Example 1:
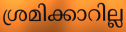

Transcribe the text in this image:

ശ്രമിക്കാറില്ല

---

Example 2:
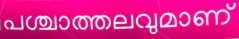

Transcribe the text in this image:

പശ്ചാത്തലവുമാണ്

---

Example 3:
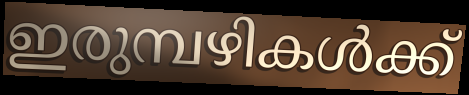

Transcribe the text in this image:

ഇരുമ്പഴികൾക്ക്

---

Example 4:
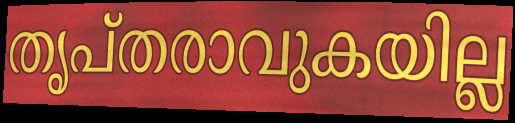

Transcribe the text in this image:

തൃപ്തരാവുകയില്ല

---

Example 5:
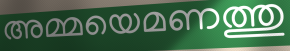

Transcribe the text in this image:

അമ്മയെമണത്തു